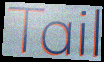
Tail